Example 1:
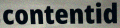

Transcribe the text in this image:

contentid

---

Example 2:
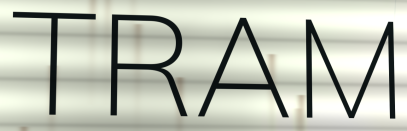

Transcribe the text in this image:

TRAM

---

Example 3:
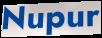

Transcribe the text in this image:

Nupur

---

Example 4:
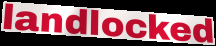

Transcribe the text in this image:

landlocked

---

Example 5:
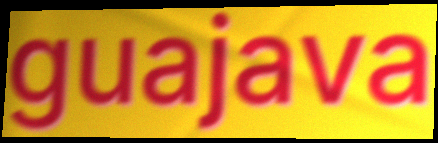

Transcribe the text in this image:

guajava